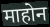
माहोन